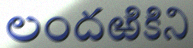
లందఱికిని